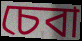
চেবা